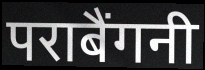
पराबैंगनी